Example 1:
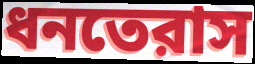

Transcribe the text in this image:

ধনতেরাস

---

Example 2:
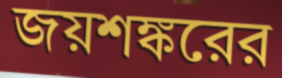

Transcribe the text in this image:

জয়শঙ্করের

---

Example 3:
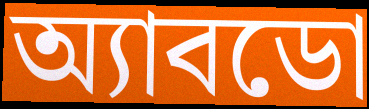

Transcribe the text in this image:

অ্যাবডো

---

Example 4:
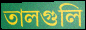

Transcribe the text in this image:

তালগুলি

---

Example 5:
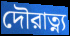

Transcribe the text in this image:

দৌরাত্ন্য